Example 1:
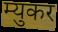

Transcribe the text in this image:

म्युकर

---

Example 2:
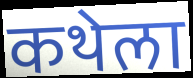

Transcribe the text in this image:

कथेला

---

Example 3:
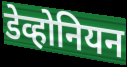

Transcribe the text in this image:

डेव्होनियन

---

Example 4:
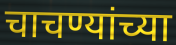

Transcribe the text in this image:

चाचण्यांच्या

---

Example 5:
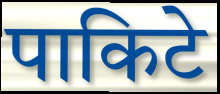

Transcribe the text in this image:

पाकिटे